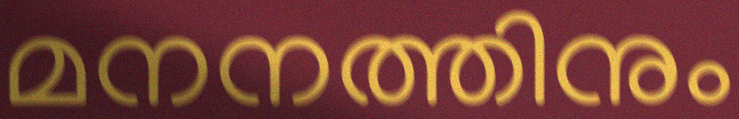
മനനത്തിനും